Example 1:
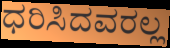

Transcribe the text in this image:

ಧರಿಸಿದವರಲ್ಲ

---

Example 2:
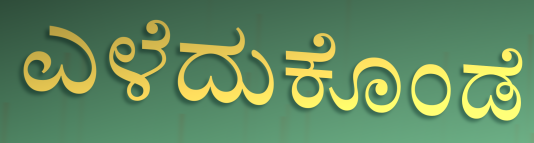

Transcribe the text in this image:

ಎಳೆದುಕೊಂಡೆ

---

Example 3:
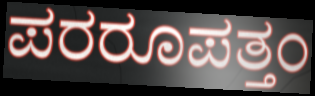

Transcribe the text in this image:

ಪರರೂಪತ್ತಂ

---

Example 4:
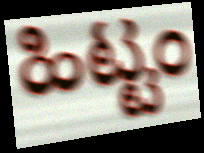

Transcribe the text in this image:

ಹಿಟ್ಟಂ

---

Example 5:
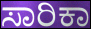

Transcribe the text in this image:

ಸಾರಿಕಾ